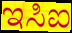
ಇಸಿಐ